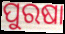
ପୁରଷା